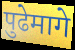
पुढेमागे